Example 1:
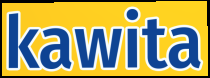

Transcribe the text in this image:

kawita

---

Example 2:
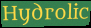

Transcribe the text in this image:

Hydrolic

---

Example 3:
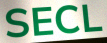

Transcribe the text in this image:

SECL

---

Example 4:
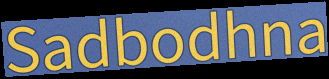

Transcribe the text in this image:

Sadbodhna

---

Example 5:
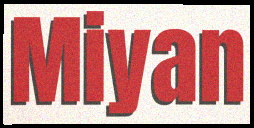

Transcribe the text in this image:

Miyan